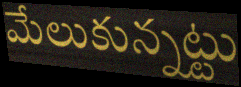
మేలుకున్నట్టు